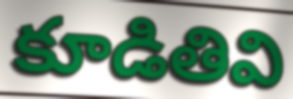
కూడితివి